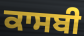
ਕਾਸਬੀ